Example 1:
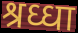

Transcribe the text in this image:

श्रध्धा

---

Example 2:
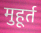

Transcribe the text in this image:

मुहूर्त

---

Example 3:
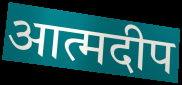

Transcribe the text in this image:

आत्मदीप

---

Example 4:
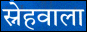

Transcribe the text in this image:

स्नेहवाला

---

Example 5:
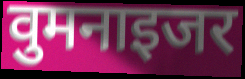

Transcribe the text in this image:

वुमनाइजर